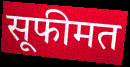
सूफीमत